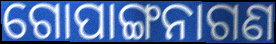
ଗୋପାଙ୍ଗନାଗଣ